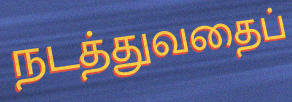
நடத்துவதைப்